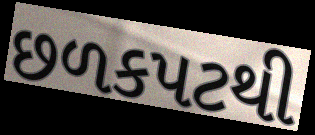
છળકપટથી